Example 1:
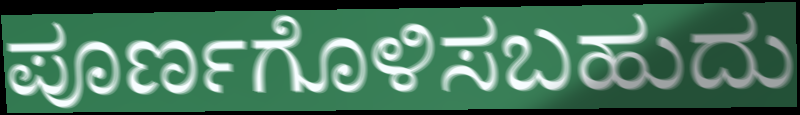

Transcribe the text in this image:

ಪೂರ್ಣಗೊಳಿಸಬಹುದು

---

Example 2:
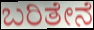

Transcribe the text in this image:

ಬರಿತೇನೆ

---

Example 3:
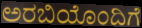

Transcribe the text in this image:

ಅರಬಿಯೊಂದಿಗೆ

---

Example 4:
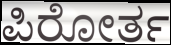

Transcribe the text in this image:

ಪಿರೋರ್ತ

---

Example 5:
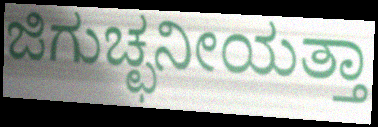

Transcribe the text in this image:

ಜಿಗುಚ್ಛನೀಯತ್ತಾ